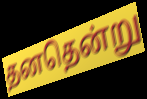
தனதென்று